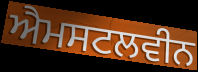
ਐਮਸਟਲਵੀਨ